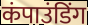
कंपाउंडिंग